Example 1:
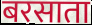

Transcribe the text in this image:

बरसाता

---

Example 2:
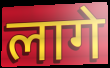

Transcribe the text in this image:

लागे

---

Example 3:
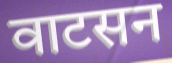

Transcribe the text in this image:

वाटसन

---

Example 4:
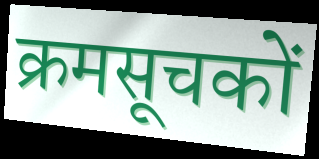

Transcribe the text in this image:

क्रमसूचकों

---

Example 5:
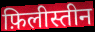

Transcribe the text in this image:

फ़िलीस्तीन